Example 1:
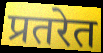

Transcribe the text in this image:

प्रतरेत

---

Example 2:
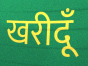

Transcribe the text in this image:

खरीदूँ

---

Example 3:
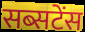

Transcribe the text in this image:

सब्सटेंस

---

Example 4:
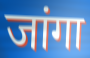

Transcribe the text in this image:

जांगा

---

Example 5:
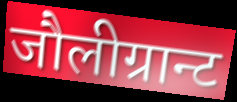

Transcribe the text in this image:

जौलीग्रान्ट